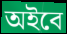
অইবে